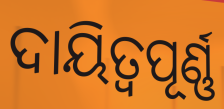
ଦାୟିତ୍ବପୂର୍ଣ୍ଣ